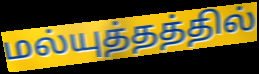
மல்யுத்தத்தில்